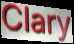
Clary